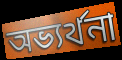
অভ্যৰ্থনা